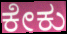
ಕೇಕು